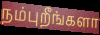
நம்புறீங்களா